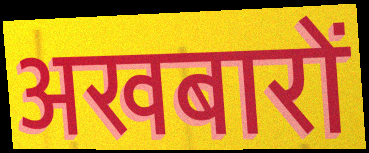
अखबारों